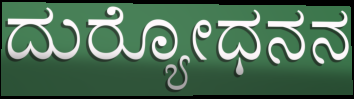
ದುರ‍್ಯೋಧನನ